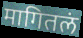
मागितलं